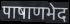
पाषाणभेद